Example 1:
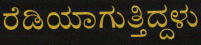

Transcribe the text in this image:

ರೆಡಿಯಾಗುತ್ತಿದ್ದಳು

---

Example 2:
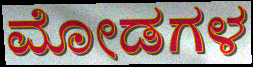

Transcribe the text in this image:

ಮೋಡಗಳ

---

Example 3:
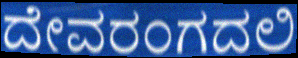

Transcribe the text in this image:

ದೇವರಂಗದಲಿ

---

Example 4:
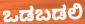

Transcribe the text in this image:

ಒಡಬಡಲಿ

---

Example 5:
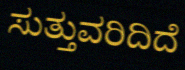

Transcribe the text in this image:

ಸುತ್ತುವರಿದಿದೆ